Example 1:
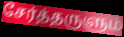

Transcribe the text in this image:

சேர்த்தருளும்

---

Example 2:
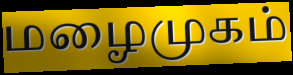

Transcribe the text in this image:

மழைமுகம்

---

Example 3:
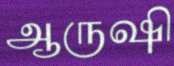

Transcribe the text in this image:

ஆருஷி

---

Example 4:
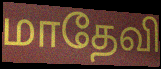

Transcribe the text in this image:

மாதேவி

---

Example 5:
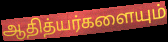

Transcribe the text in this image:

ஆதித்யர்களையும்